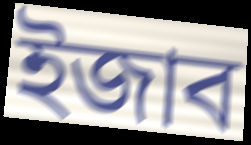
ইজাব